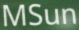
MSun